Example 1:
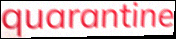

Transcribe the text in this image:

quarantine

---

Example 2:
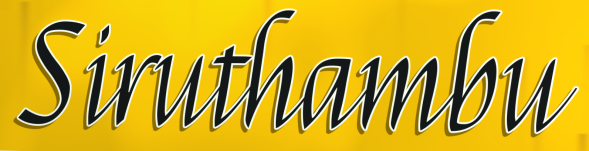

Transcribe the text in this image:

Siruthambu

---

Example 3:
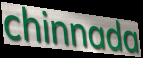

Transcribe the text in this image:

chinnada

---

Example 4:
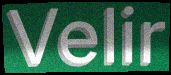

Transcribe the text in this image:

Velir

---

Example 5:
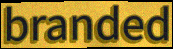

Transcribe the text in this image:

branded